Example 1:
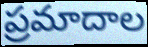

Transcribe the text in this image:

ప్రమాదాల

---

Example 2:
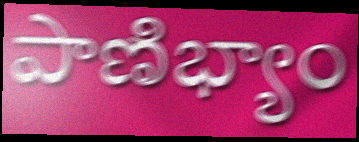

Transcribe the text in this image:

పాణిభ్యాం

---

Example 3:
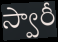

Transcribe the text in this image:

స్వారీ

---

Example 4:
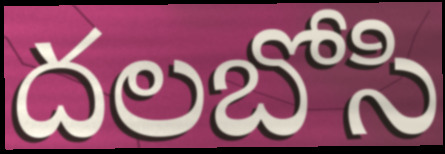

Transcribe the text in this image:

దలబోసి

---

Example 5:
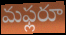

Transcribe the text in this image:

మఫ్లరూ